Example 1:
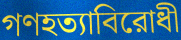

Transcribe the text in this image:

গণহত্যাবিরোধী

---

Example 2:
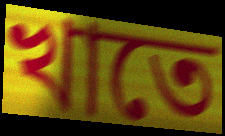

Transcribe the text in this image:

খাতে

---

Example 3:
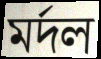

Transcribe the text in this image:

মর্দল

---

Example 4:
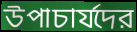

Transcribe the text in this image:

উপাচার্যদের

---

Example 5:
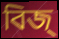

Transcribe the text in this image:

বিজ্